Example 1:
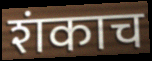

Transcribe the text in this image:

शंकाच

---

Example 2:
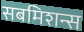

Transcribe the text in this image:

सबमिशन्स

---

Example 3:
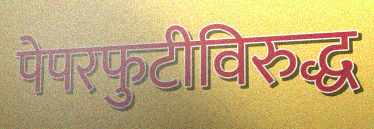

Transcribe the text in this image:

पेपरफुटीविरुद्ध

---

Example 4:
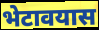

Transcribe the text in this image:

भेटावयास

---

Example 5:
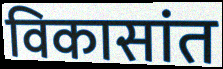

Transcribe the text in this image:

विकासांत